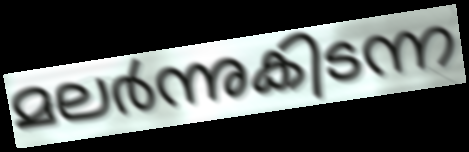
മലർന്നുകിടന്ന